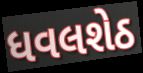
ધવલશેઠ